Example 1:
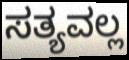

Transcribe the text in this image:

ಸತ್ಯವಲ್ಲ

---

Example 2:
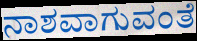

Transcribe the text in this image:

ನಾಶವಾಗುವಂತೆ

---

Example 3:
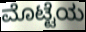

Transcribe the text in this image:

ಮೊಟ್ಟೆಯ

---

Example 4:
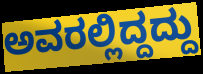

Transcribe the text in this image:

ಅವರಲ್ಲಿದ್ದದ್ದು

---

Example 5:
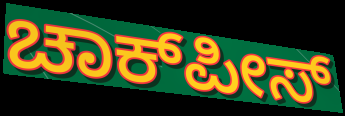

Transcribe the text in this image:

ಚಾಕ್‌ಪೀಸ್